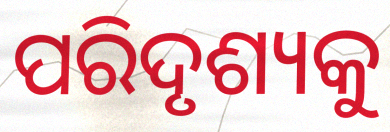
ପରିଦୃଶ୍ୟକୁ